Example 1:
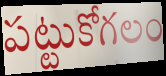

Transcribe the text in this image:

పట్టుకోగలం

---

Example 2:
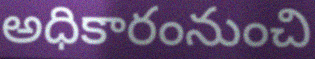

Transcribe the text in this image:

అధికారంనుంచి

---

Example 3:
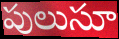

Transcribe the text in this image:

పులుసూ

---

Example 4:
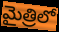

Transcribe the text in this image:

మైత్రిలో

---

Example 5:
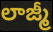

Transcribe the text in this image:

లాజ్మీ